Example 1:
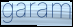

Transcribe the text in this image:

garam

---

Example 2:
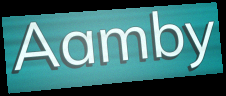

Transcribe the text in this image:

Aamby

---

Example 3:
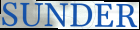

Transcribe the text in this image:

SUNDER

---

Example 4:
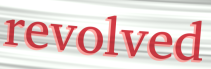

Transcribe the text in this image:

revolved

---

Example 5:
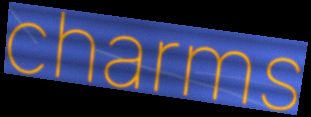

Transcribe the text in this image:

charms